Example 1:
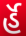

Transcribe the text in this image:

ર્હૅ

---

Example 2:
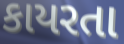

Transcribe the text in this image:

કાયરતા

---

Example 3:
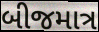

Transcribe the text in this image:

બીજમાત્ર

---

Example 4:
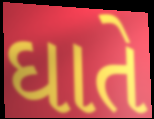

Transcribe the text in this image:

ઘાતે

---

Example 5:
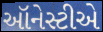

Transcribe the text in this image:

ઑનેસ્ટીએ